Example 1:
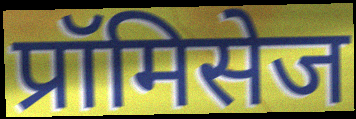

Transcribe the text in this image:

प्रॉमिसेज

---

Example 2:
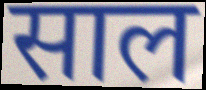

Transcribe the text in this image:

साल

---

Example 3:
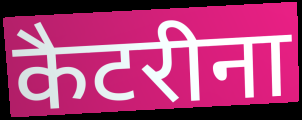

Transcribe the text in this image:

कैटरीना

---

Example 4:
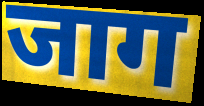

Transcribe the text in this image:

जाग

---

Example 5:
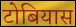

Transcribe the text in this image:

टोबियास